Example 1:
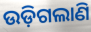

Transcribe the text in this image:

ଉଡ଼ିଗଲାଣି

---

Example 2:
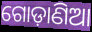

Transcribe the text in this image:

ଗୋଡ଼ାଣିଆ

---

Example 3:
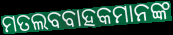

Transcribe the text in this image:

ମତଲବବାହକମାନଙ୍କ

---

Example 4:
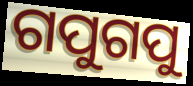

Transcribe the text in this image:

ଗପୁଗପୁ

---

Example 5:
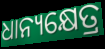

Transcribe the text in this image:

ଧାନ୍ୟକ୍ଷେତ୍ର